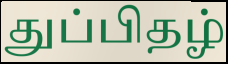
துப்பிதழ்